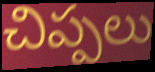
చిప్పలు